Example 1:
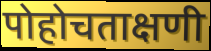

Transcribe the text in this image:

पोहोचताक्षणी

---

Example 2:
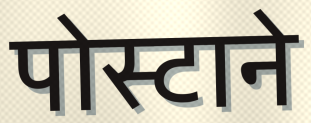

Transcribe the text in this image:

पोस्टाने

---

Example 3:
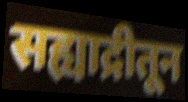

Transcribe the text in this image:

सह्याद्रीतून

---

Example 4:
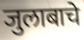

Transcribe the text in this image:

जुलाबाचे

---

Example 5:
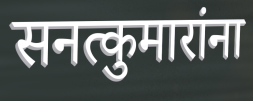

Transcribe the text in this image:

सनत्कुमारांना